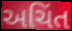
અચિંત